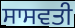
ਸਾਸਵਤੀ